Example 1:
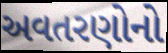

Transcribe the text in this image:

અવતરણોનો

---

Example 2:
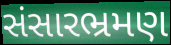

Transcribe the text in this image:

સંસારભ્રમણ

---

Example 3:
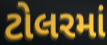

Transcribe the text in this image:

ટોલરમાં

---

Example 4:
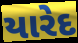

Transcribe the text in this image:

યારેદ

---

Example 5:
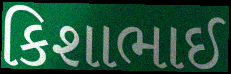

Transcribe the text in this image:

કિશાભાઈ